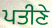
ਪਤੀਣੇ